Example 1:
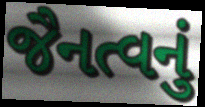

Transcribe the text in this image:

જૈનત્વનું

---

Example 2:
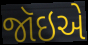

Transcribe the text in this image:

જૉઇએ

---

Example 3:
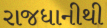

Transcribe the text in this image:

રાજધાનીથી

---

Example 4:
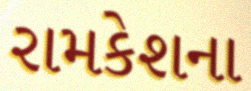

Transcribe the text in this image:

રામકેશના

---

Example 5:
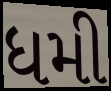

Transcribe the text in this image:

ધમી